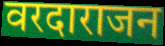
वरदाराजन